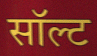
सॉल्ट